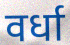
वर्धा